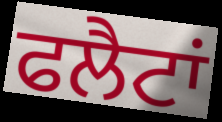
ਫਲੈਟਾਂ